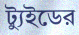
ট্যুইডের